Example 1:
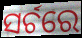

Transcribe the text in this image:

ସର୍ଚରେ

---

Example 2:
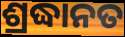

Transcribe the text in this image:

ଶ୍ରଦ୍ଧାନତ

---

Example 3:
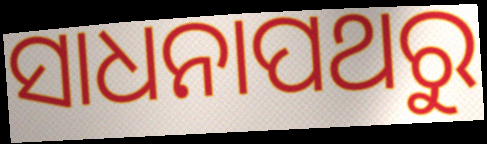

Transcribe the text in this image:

ସାଧନାପଥରୁ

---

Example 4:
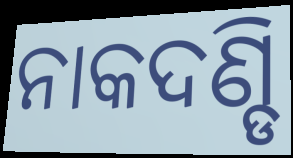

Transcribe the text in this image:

ନାକଦଣ୍ଡି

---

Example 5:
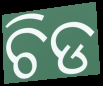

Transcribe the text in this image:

ଚିଡ